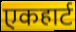
एकहार्ट